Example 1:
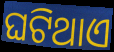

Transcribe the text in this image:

ଘଟିଥାଏ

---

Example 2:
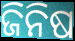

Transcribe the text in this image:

ଜିନିଷ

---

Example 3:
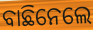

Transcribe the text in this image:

ବାଛିନେଲେ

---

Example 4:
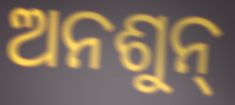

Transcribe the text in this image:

ଅନଶୁନ୍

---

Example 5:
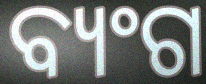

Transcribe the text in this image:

ବ୍ୟଂଗ